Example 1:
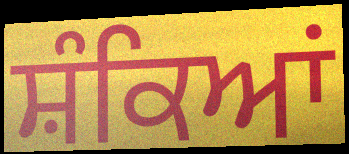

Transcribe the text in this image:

ਸ਼ੰਕਿਆਂ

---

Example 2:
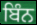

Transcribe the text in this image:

ਬਿੰਨ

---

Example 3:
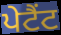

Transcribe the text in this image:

ਪੇਟੈਂਟ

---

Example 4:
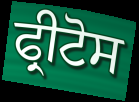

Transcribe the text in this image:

ਫ੍ਰੀਟੋਸ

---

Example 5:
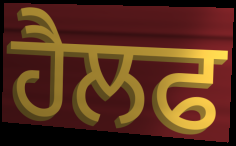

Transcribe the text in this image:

ਹੈਲਫ